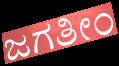
ಜಗತೀಂ